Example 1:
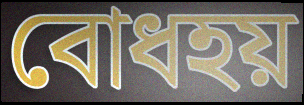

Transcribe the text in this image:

বোধহয়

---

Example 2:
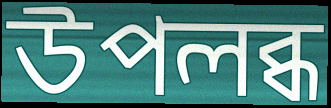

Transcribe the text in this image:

উপলব্ধ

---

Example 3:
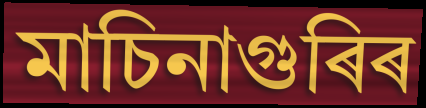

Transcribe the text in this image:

মাচিনাগুৰিৰ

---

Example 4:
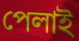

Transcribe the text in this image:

পেলাই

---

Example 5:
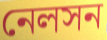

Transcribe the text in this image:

নেলসন